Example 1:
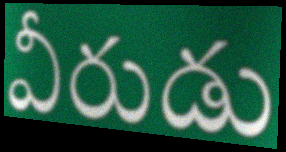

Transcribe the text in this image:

వీరుడు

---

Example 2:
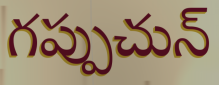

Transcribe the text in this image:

గప్పుచున్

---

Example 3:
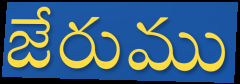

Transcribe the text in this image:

జేరుము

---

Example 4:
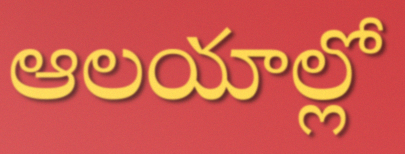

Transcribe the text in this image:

ఆలయాల్లో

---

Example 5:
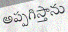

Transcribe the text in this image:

అప్పగిస్తాను